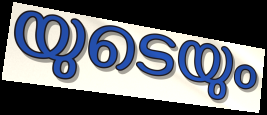
യുടെയും